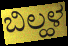
ಬಿಲ್ಹಳ